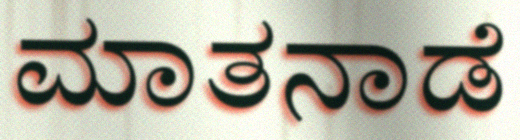
ಮಾತನಾಡೆ